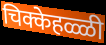
चिक्केहळ्ळी